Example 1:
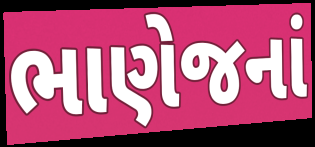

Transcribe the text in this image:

ભાણેજનાં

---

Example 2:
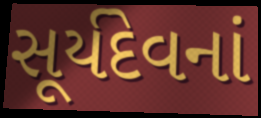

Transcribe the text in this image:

સૂર્યદેવનાં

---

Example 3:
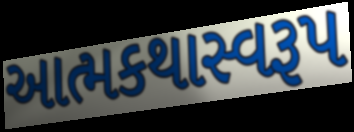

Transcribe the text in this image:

આત્મકથાસ્વરૂપ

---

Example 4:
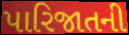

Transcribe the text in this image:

પારિજાતની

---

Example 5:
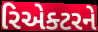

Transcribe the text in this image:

રિએક્ટરને